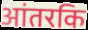
आंतरकि